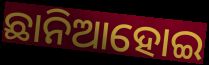
ଛାନିଆହୋଇ